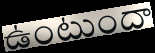
ఉంటుందా